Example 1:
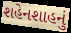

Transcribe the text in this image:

શહેનશાહનું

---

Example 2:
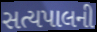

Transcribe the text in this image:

સત્યપાલની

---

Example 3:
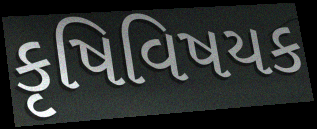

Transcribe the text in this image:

કૃષિવિષયક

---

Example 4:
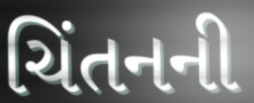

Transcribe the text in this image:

ચિંતનની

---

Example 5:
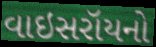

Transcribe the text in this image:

વાઇસરૉયનો